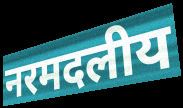
नरमदलीय